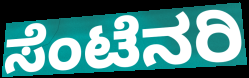
ಸೆಂಟೆನರಿ